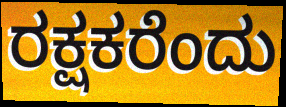
ರಕ್ಷಕರೆಂದು